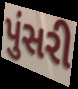
પુંસરી